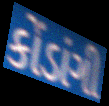
કોંડાંગી